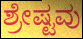
ಶ್ರೇಷ್ಟವು